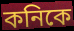
কনিকে